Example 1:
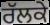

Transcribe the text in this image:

ਰੱਲਕੇ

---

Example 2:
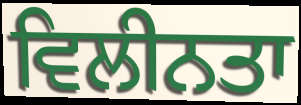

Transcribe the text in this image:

ਵਿਲੀਨਤਾ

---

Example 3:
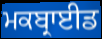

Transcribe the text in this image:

ਮਕਬ੍ਰਾਈਡ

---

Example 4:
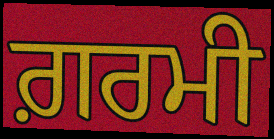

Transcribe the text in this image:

ਗ਼ਰਮੀ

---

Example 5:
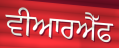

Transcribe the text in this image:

ਵੀਆਰਐੱਫ